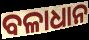
ବଳାଧାନ